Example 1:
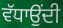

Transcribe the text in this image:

ਵੱਧਾਉਂਦੀ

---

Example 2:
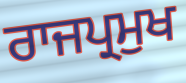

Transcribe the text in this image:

ਰਾਜਪ੍ਰਮੁਖ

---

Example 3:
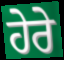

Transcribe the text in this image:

ਹੇਰੇ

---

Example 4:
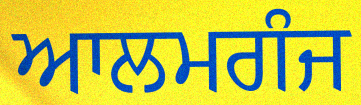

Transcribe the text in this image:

ਆਲਮਗੰਜ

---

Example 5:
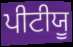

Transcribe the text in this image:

ਪੀਟੀਯੂ